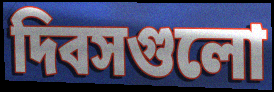
দিবসগুলো